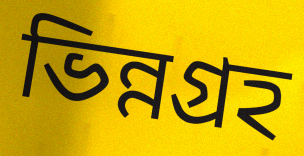
ভিন্নগ্রহ